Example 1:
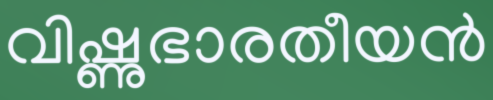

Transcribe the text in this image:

വിഷ്ണുഭാരതീയൻ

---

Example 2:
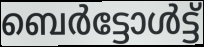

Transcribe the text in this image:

ബെർട്ടോൾട്ട്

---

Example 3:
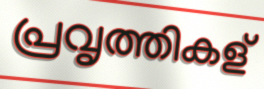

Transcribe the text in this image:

പ്രവൃത്തികള്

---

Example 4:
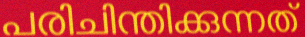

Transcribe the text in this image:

പരിചിന്തിക്കുന്നത്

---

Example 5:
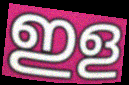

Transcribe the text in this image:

ഇള